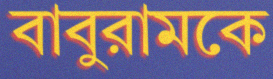
বাবুরামকে